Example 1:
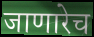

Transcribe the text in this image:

जाणारेच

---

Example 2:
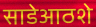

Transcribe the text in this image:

साडेआठशे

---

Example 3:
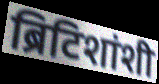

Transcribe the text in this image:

ब्रिटिशांशी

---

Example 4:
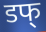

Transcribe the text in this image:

डफ्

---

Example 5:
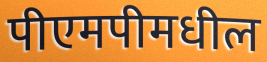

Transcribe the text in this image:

पीएमपीमधील